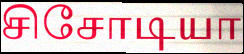
சிசோடியா